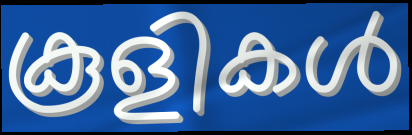
കൂളികൾ